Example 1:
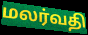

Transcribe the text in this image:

மலர்வதி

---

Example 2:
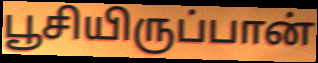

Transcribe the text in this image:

பூசியிருப்பான்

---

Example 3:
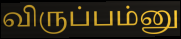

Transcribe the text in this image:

விருப்பம்னு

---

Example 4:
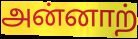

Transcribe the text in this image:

அன்னாற்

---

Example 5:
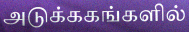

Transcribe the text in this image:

அடுக்ககங்களில்